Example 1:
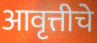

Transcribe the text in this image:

आवृत्तीचे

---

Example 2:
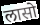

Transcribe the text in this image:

लासो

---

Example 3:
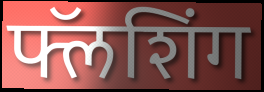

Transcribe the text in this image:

फ्लॅशिंग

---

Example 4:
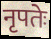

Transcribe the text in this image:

नृपतेः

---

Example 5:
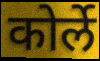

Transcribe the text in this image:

कोर्ले